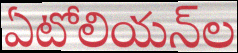
ఏటోలియన్‌ల